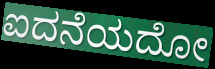
ಐದನೆಯದೋ